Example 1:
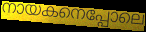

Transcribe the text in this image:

നായകനെപ്പോലെ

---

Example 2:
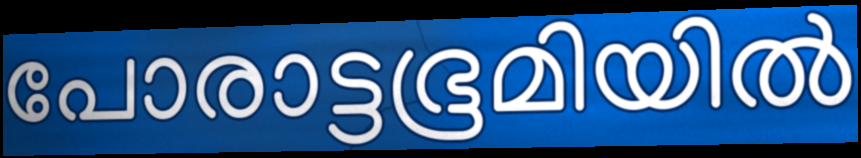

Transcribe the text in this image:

പോരാട്ടഭൂമിയിൽ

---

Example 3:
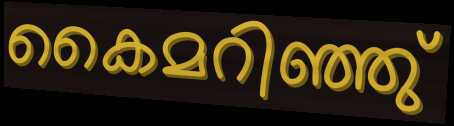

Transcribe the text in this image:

കൈമറിഞ്ഞു്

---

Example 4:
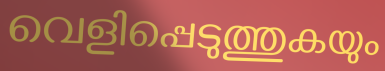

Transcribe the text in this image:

വെളിപ്പെടുത്തുകയും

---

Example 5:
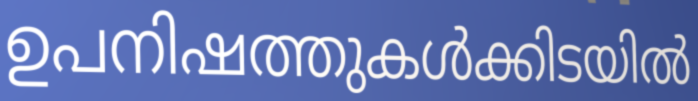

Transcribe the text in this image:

ഉപനിഷത്തുകൾക്കിടയിൽ